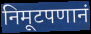
निमूटपणानं